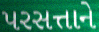
પરસત્તાને